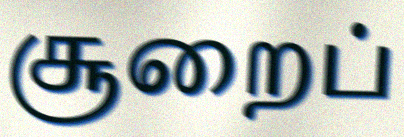
சூறைப்